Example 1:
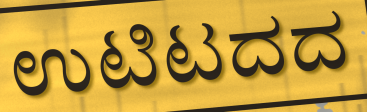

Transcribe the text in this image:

ಉಟಿಟದದ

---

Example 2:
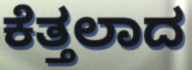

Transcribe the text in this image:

ಕೆತ್ತಲಾದ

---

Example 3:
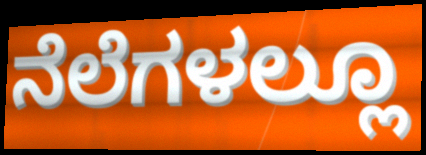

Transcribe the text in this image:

ನೆಲೆಗಳಲ್ಲೂ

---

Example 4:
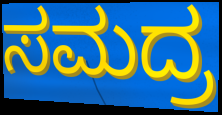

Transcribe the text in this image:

ಸಮದ್ರ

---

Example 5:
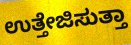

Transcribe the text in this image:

ಉತ್ತೇಜಿಸುತ್ತಾ